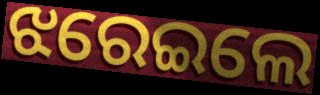
ଝରେଇଲେ